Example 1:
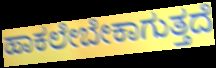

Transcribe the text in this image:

ಹಾಕಲೇಬೇಕಾಗುತ್ತದೆ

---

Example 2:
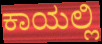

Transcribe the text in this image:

ಕಾಯಲ್ಲಿ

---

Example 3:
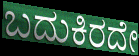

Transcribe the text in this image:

ಬದುಕಿರದೇ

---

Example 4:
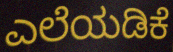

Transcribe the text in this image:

ಎಲೆಯಡಿಕೆ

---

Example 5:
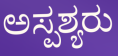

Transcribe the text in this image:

ಅಸ್ಪಶ್ಯರು